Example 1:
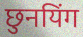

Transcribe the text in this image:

छुनयिंग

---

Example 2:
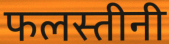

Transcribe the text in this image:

फलस्तीनी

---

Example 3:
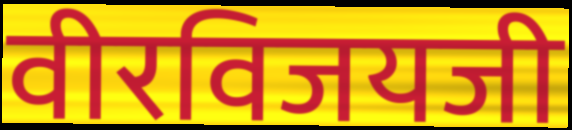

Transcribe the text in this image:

वीरविजयजी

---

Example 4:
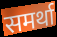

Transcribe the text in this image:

समर्था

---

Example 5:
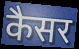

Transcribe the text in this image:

कैसर